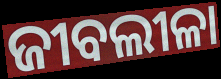
ଜୀବଲୀଳା